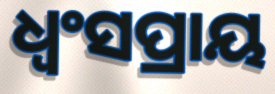
ଧ୍ୱଂସପ୍ରାୟ